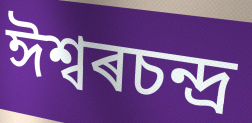
ঈশ্বৰচন্দ্ৰ